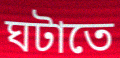
ঘটাতে